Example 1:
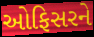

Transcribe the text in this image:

ઓફિસરને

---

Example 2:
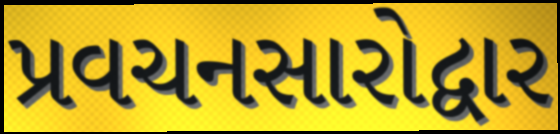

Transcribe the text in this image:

પ્રવચનસારોદ્વાર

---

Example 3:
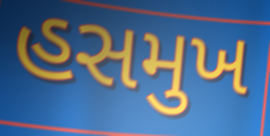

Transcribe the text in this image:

હસમુખ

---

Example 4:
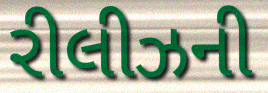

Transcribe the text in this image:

રીલીઝની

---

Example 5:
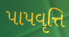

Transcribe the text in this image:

પાપવૃત્તિ